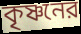
কৃষ্ণনের